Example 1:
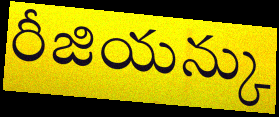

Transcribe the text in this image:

రీజియన్కు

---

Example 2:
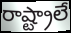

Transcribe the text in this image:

రాష్ట్రాలే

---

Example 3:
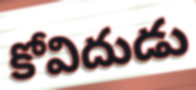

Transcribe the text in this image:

కోవిదుడు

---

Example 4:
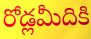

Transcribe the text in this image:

రోడ్లమీదికి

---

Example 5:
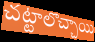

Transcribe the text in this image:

చట్టాలొచ్చాయి